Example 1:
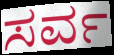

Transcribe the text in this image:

ಸರ್ವ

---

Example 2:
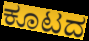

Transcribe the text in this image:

ಕೂಟದ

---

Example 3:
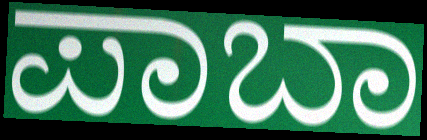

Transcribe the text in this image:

ಪಾಬಾ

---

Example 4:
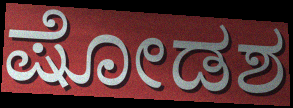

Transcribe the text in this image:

ಷೋಡಶ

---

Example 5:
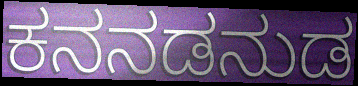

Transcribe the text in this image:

ಕನನಡನುಡ